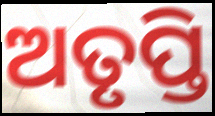
ଅତୃପ୍ତି